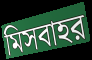
মিসবাহর